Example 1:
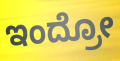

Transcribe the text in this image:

ಇಂದ್ರೋ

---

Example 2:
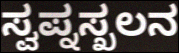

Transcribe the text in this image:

ಸ್ವಪ್ನಸ್ಖಲನ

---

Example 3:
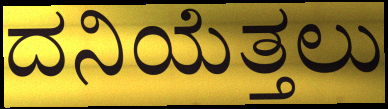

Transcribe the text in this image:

ದನಿಯೆತ್ತಲು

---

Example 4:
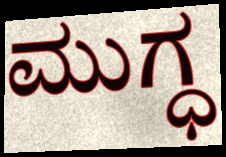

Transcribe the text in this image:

ಮುಗ್ಧ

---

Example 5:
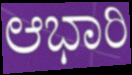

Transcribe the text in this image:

ಆಭಾರಿ